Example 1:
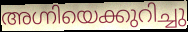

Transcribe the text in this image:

അഗ്നിയെക്കുറിച്ചു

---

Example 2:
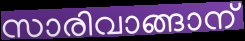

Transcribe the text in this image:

സാരിവാങ്ങാന്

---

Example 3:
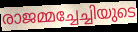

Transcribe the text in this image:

രാജമ്മച്ചേച്ചിയുടെ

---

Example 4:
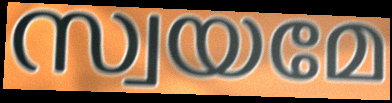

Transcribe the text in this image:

സ്വയമേ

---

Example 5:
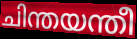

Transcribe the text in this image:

ചിന്തയന്തീ